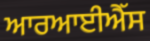
ਆਰਆਈਐੱਸ